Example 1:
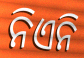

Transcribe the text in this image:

ନିଏନି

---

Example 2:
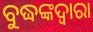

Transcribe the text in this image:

ବୁଦ୍ଧଙ୍କଦ୍ଵାରା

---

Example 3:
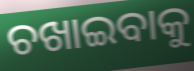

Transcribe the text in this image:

ଚଖାଇବାକୁ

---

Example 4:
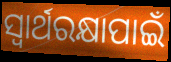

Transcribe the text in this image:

ସ୍ବାର୍ଥରକ୍ଷାପାଇଁ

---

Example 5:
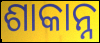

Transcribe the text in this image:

ଶାକାନ୍ନ